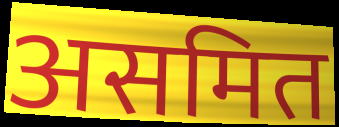
असमित